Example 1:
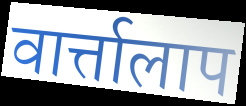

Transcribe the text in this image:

वार्त्तालाप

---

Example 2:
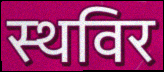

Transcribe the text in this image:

स्थविर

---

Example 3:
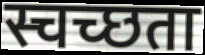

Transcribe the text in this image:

स्चच्छता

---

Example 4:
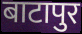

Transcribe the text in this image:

बाटापुर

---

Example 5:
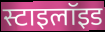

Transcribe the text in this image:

स्टाइलॉइड